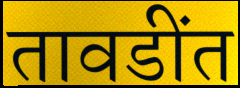
तावडींत